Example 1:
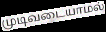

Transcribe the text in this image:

முடிவடையாமல்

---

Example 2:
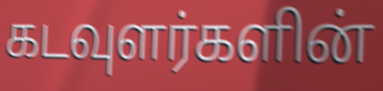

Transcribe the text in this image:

கடவுளர்களின்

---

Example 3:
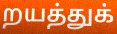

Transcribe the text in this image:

றயத்துக்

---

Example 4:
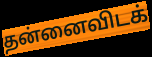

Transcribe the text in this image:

தன்னைவிடக்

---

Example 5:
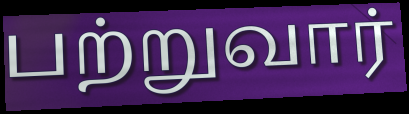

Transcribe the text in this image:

பற்றுவார்